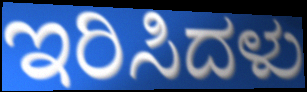
ಇರಿಸಿದಳು